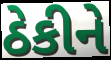
ઠેકીને